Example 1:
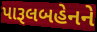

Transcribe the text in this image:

પારૂલબહેનને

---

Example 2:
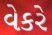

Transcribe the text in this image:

વેકરે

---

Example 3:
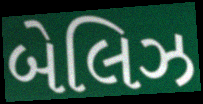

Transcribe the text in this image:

બેલિઝ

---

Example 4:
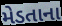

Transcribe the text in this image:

મેડતાના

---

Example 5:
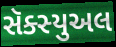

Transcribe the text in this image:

સૅક્સ્યુઅલ